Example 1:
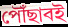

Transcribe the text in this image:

পৌঁছাবই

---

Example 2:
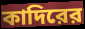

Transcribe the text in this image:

কাদিরের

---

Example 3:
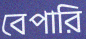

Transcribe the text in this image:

বেপারি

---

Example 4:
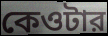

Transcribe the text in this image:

কেওটার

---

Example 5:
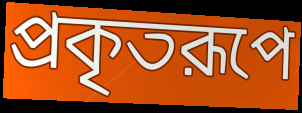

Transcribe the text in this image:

প্রকৃতরূপে